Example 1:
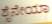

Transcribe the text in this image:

ಶೈನೇಯಾ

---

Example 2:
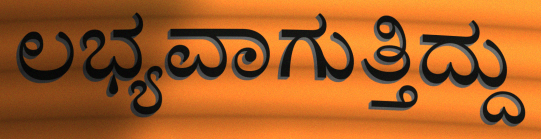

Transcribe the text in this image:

ಲಭ್ಯವಾಗುತ್ತಿದ್ದು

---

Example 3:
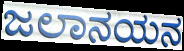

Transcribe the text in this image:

ಜಲಾನಯನ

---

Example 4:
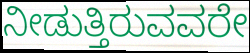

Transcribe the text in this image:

ನೀಡುತ್ತಿರುವವರೇ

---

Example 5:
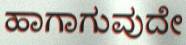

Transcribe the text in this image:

ಹಾಗಾಗುವುದೇ